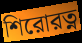
শিরোরত্ন